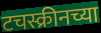
टचस्क्रीनच्या